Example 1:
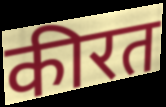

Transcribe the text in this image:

कीरत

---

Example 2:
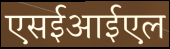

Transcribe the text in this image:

एसईआईएल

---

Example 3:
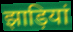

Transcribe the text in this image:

झाड़ियां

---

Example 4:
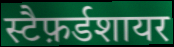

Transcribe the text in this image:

स्टैफ़र्डशायर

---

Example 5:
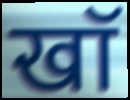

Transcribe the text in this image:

खॉ